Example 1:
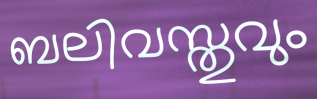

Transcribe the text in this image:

ബലിവസ്തുവും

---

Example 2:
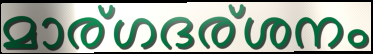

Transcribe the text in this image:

മാര്ഗദര്ശനം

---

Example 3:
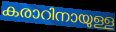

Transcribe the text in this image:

കരാറിനായുള്ള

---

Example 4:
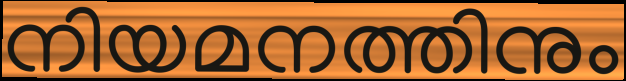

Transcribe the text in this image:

നിയമനത്തിനും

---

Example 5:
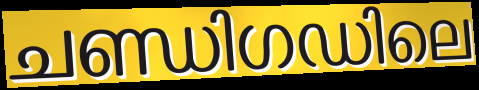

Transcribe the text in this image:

ചണ്ഡിഗഡിലെ